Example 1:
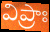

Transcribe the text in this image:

విప్రాః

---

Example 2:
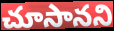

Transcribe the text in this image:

చూసానని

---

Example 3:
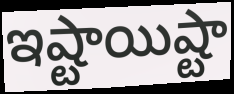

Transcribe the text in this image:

ఇష్టాయిష్టా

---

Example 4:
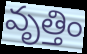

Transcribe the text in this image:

వృత్తిం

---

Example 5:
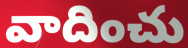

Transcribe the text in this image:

వాదించు